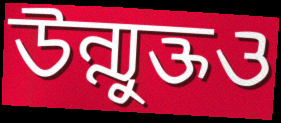
উন্মুক্তও